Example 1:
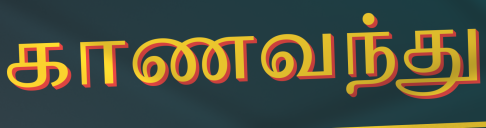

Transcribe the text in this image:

காணவந்து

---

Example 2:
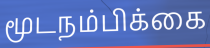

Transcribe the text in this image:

மூடநம்பிக்கை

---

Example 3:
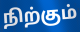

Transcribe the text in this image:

நிற்கும்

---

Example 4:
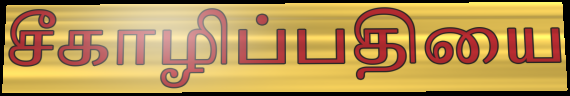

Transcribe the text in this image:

சீகாழிப்பதியை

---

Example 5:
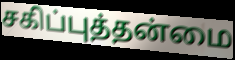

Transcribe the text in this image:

சகிப்புத்தன்மை